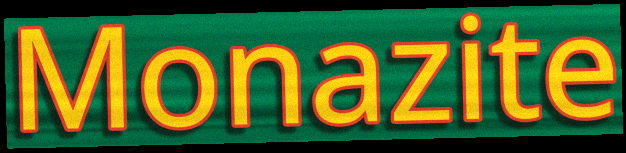
Monazite